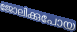
ജോലിക്കുപോയ